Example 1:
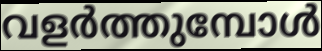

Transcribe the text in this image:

വളർത്തുമ്പോൾ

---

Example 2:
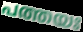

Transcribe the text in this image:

പത്തയഃ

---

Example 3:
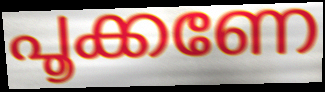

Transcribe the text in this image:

പൂക്കണേ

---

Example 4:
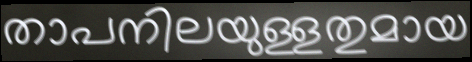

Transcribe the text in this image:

താപനിലയുള്ളതുമായ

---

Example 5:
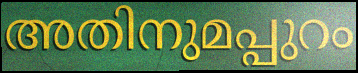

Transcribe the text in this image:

അതിനുമപ്പുറം